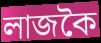
লাজকৈ